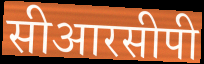
सीआरसीपी